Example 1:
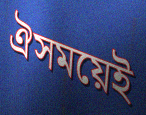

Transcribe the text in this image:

ঐসময়েই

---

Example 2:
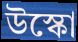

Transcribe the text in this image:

উস্কো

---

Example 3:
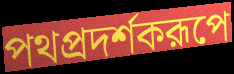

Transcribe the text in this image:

পথপ্রদর্শকরূপে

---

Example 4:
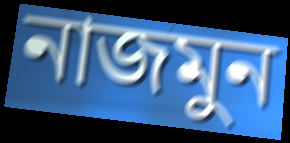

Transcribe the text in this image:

নাজমুন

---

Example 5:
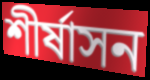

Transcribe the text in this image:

শীর্ষাসন